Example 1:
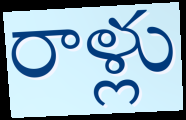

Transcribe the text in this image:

రాళ్లు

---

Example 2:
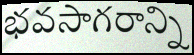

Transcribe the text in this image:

భవసాగరాన్ని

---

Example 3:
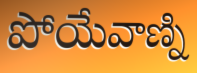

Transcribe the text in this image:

పోయేవాణ్ని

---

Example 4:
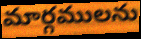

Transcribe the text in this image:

మార్గములను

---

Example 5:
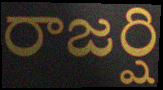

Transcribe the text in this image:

రాజర్షి